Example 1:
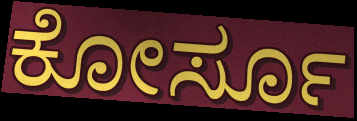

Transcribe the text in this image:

ಕೋರ್ಸೂ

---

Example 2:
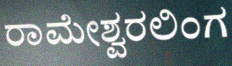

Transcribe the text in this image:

ರಾಮೇಶ್ವರಲಿಂಗ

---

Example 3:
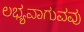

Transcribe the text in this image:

ಲಭ್ಯವಾಗುವವು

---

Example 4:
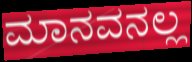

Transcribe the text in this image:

ಮಾನವನಲ್ಲ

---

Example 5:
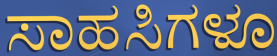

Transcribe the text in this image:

ಸಾಹಸಿಗಳೂ